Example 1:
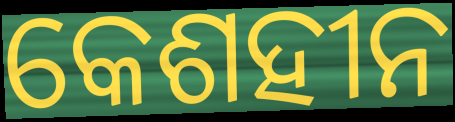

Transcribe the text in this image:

କେଶହୀନ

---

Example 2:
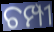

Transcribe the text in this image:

ଚମ୍ପୀ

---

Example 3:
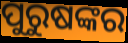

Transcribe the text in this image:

ପୁରୁଷଙ୍କର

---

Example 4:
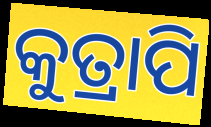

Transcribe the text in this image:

କୁତ୍ରାପି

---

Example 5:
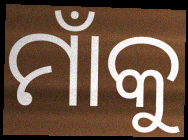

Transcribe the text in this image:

ମାଁକୁ